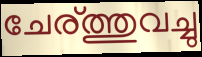
ചേര്ത്തുവച്ചു